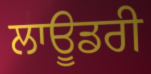
ਲਾਊਡਰੀ